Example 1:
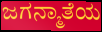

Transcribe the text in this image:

ಜಗನ್ಮಾತೆಯ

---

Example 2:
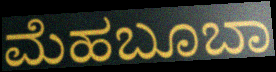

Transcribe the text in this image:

ಮೆಹಬೂಬಾ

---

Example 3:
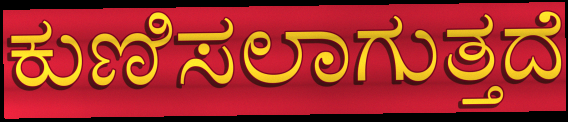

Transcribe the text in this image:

ಕುಣಿಸಲಾಗುತ್ತದೆ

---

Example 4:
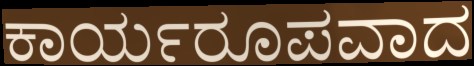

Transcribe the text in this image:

ಕಾರ್ಯರೂಪವಾದ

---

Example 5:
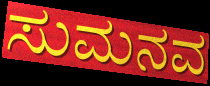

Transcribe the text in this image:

ಸುಮನವ